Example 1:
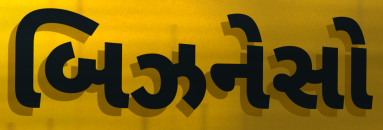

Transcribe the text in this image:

બિઝનેસો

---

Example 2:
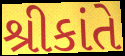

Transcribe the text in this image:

શ્રીકાંતે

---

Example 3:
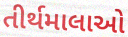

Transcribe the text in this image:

તીર્થમાલાઓ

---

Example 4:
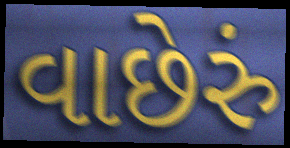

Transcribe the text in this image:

વાછેરું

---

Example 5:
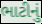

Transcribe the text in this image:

ભાટીનું